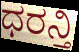
ಧರನ್ತಿ